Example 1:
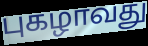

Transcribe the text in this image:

புகழாவது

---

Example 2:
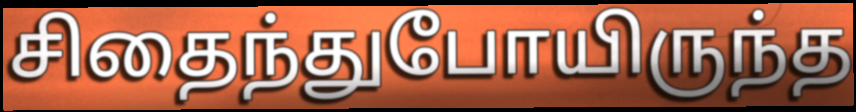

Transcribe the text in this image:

சிதைந்துபோயிருந்த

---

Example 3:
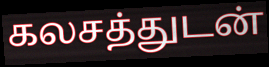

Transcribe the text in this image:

கலசத்துடன்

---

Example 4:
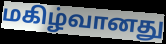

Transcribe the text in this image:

மகிழ்வானது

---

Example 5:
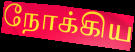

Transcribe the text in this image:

நோக்கிய